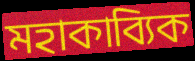
মহাকাব্যিক